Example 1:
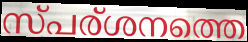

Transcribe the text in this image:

സ്പര്ശനത്തെ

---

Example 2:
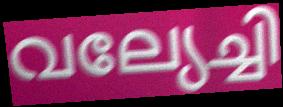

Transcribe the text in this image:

വല്യേച്ചി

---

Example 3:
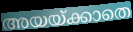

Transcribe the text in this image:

അയയ്ക്കാതെ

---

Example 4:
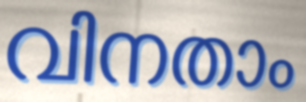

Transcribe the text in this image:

വിനതാം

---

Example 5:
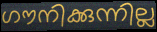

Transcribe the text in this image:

ഗൗനിക്കുന്നില്ല